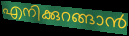
എനിക്കുറങ്ങാൻ